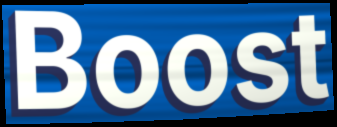
Boost